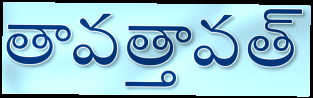
తావత్తావత్